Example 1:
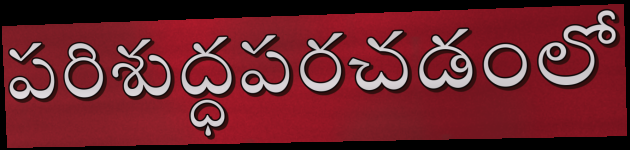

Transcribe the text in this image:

పరిశుద్ధపరచడంలో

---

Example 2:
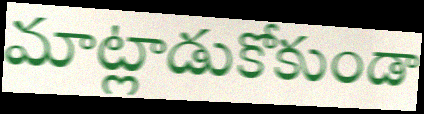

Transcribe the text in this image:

మాట్లాడుకోకుండా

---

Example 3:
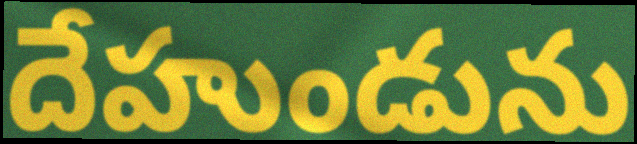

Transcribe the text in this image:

దేహుండును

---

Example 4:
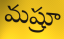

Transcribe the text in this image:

మష్రూ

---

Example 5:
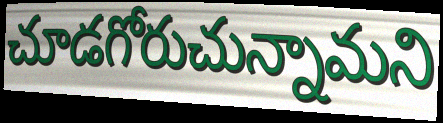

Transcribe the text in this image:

చూడగోరుచున్నామని